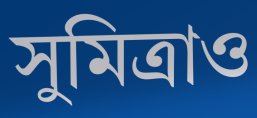
সুমিত্রাও